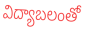
విద్యాబలంతో